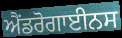
ਐਂਡਰੋਗਾਈਨਸ